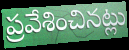
ప్రవేశించినట్లు